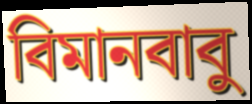
বিমানবাবু